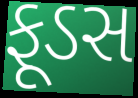
ફૂડસ